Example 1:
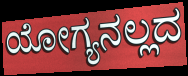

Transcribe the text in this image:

ಯೋಗ್ಯನಲ್ಲದ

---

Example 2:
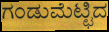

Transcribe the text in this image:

ಗಂಡುಮೆಟ್ಟಿದ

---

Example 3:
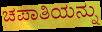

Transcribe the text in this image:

ಚಪಾತಿಯನ್ನು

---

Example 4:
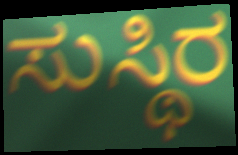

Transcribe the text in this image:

ಸುಸ್ಥಿರ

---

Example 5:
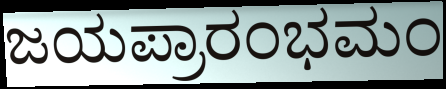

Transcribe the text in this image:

ಜಯಪ್ರಾರಂಭಮಂ